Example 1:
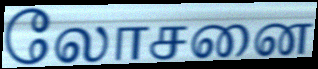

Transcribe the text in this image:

லோசனை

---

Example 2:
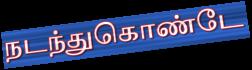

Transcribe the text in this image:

நடந்துகொண்டே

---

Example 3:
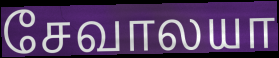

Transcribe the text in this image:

சேவாலயா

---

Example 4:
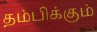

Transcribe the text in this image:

தம்பிக்கும்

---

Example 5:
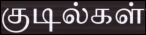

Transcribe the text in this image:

குடில்கள்